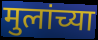
मुलांच्या